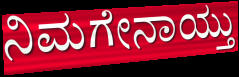
ನಿಮಗೇನಾಯ್ತು